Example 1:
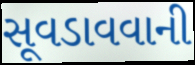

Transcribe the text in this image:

સૂવડાવવાની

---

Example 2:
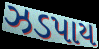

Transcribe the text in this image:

ઝડપાય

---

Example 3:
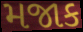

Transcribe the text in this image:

મજાક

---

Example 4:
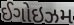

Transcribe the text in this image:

ઈગોઇઝમ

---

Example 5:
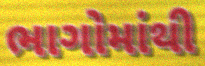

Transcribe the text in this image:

ભાગોમાંથી